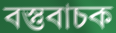
বস্তুবাচক